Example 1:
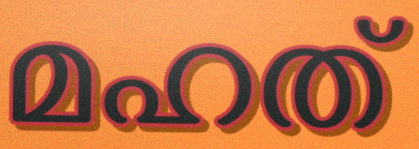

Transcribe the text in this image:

മഹത്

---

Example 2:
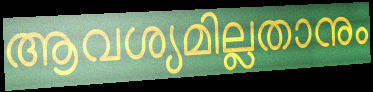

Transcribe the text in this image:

ആവശ്യമില്ലതാനും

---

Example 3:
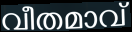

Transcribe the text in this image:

വീതമാവ്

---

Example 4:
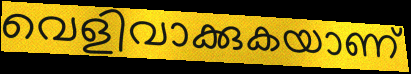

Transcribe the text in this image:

വെളിവാക്കുകയാണ്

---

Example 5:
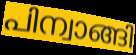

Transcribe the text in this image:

പിന്വാങ്ങി